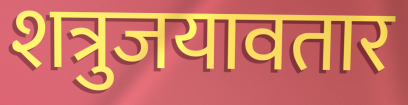
शत्रुजयावतार